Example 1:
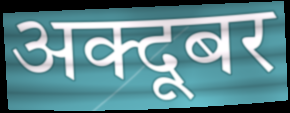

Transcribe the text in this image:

अक्दूबर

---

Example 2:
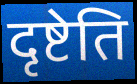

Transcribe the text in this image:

दृष्टेति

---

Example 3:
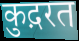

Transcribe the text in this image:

कुद़रत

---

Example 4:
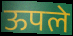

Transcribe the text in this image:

ऊपले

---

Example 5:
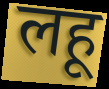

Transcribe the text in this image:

लहू